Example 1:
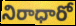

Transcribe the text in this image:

నిరాధారో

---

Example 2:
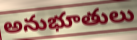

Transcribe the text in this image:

అనుభూతులు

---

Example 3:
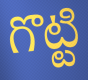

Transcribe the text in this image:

గొట్టి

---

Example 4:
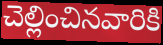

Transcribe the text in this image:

చెల్లించినవారికి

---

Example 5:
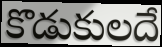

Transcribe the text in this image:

కొడుకులదే